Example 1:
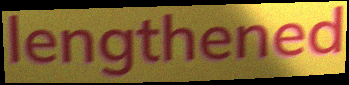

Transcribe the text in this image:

lengthened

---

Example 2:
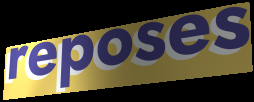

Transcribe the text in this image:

reposes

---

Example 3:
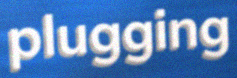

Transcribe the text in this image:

plugging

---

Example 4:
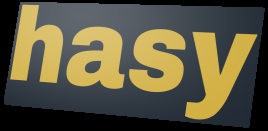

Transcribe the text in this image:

hasy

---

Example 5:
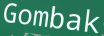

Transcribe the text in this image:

Gombak